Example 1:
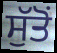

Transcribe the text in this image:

ਸੁੱਤੋਂ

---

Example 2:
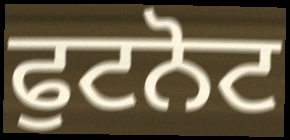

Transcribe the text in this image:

ਫੁਟਨੋਟ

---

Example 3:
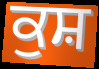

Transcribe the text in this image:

ਕੁਸ਼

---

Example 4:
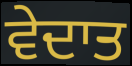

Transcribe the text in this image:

ਵੇਦਾਤ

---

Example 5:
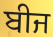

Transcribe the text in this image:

ਬੀਜ